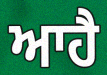
ਆਹੈ